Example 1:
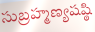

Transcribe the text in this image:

సుబ్రహ్మణ్యషష్ఠి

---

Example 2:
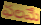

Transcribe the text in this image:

ఫలమే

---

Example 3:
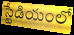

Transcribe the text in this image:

స్టేడియంలో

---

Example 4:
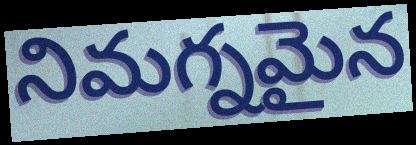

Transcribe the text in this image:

నిమగ్నమైన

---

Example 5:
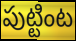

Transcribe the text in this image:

పుట్టింట